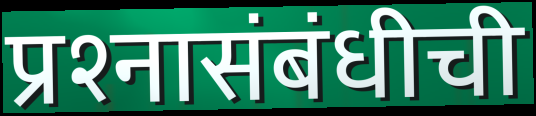
प्रश्नासंबंधीची